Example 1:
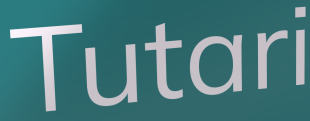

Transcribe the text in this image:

Tutari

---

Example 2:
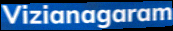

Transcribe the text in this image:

Vizianagaram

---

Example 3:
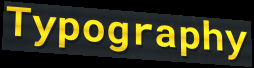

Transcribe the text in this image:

Typography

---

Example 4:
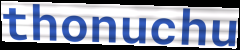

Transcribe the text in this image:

thonuchu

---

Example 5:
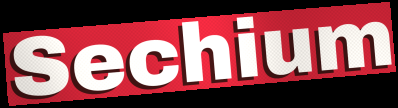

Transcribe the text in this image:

Sechium